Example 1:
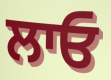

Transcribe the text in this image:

ਲਾਓ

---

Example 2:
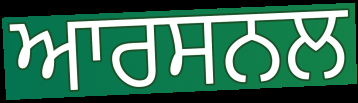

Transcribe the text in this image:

ਆਰਸਨਲ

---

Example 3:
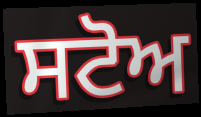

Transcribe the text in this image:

ਸਟੋਅ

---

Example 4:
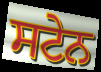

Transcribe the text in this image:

ਸਟੇਨ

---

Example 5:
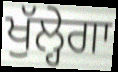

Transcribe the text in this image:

ਖੁੱਲ੍ਹੇਗਾ